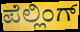
ಪೆಲ್ಲಿಂಗ್